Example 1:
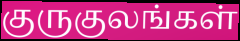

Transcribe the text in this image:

குருகுலங்கள்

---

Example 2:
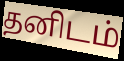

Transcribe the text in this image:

தனிடம்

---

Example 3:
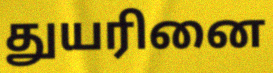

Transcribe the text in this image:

துயரினை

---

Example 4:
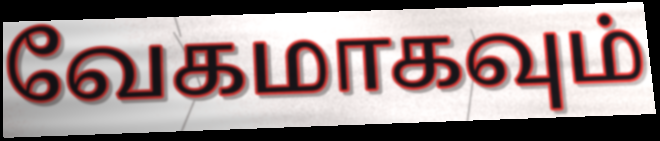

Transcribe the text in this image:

வேகமாகவும்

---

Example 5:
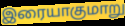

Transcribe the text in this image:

இரையாகுமாறு